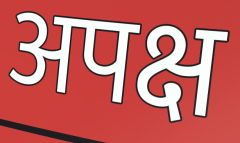
अपक्ष